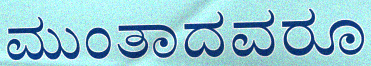
ಮುಂತಾದವರೂ